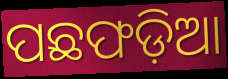
ପଛଫଡ଼ିଆ